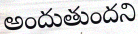
అందుతుందని